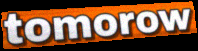
tomorow